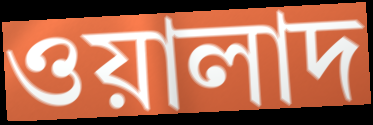
ওয়ালাদ